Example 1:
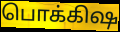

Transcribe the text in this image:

பொக்கிஷ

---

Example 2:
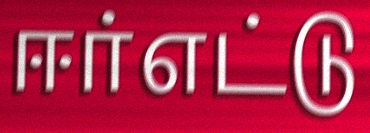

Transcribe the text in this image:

ஈர்எட்டு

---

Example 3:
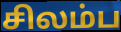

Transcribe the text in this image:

சிலம்ப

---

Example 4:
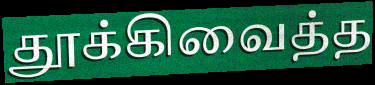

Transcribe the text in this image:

தூக்கிவைத்த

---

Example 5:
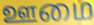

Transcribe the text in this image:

ஊமை